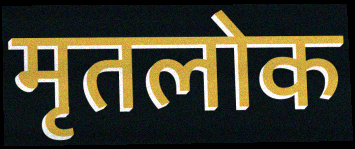
मृतलोक